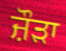
ਜ਼ੌੜਾ